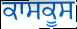
ਕਾਸਕੂਸ